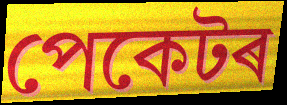
পেকেটৰ